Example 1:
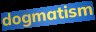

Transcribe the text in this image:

dogmatism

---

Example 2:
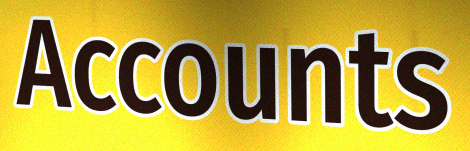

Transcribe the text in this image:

Accounts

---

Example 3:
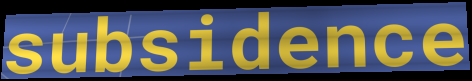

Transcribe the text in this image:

subsidence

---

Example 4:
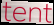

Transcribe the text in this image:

tent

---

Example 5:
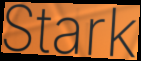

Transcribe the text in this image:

Stark